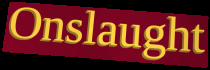
Onslaught